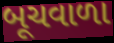
બૂચવાળા